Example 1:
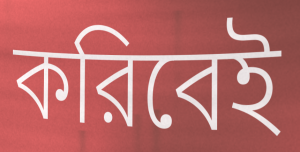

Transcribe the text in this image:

করিবেই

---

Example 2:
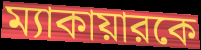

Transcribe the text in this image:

ম্যাকায়ারকে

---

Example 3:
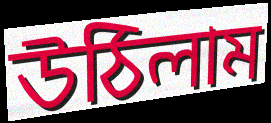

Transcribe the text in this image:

উঠিলাম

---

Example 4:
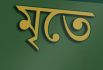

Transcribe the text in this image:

মৃতে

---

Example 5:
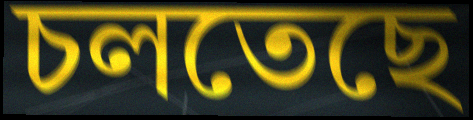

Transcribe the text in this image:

চলতেছে